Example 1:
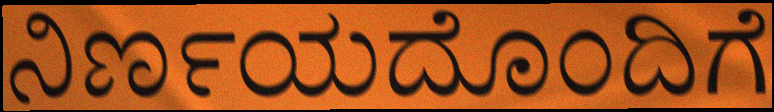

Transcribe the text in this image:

ನಿರ್ಣಯದೊಂದಿಗೆ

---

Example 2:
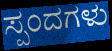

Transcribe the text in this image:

ಸ್ಪಂದಗಳು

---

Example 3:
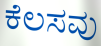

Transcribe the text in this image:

ಕೆಲಸವು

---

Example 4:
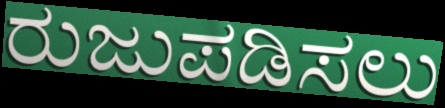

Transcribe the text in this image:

ರುಜುಪಡಿಸಲು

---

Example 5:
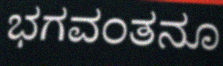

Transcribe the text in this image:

ಭಗವಂತನೂ